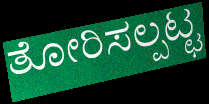
ತೋರಿಸಲ್ಪಟ್ಟ